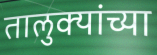
तालुक्यांच्या